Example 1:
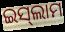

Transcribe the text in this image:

ଇସ୍‌ଲାମ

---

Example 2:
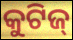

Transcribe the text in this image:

କୁଟିଜ୍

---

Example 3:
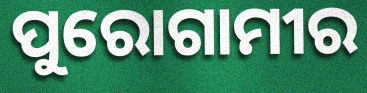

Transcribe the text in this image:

ପୁରୋଗାମୀର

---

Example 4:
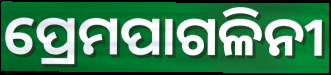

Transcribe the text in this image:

ପ୍ରେମପାଗଳିନୀ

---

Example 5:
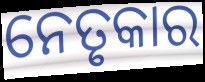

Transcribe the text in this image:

ନେତୃକାର